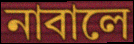
নাবালে